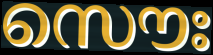
സൌഃ